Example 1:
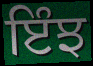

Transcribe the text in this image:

ਇੰਝ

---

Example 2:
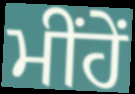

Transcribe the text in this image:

ਮੀਂਹੇਂ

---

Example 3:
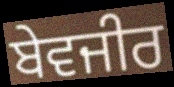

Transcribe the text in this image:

ਬੇਵਜੀਰ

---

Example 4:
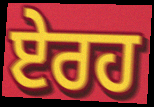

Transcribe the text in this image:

ਏਰਹ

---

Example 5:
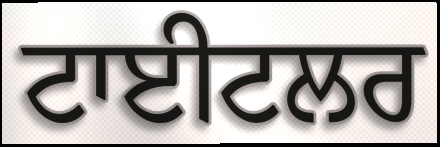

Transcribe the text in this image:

ਟਾਈਟਲਰ